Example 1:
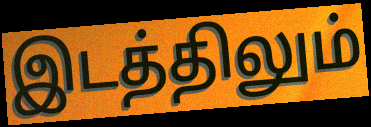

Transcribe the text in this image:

இடத்திலும்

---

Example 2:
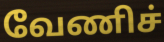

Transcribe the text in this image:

வேணிச்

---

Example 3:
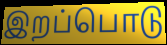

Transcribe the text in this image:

இறப்பொடு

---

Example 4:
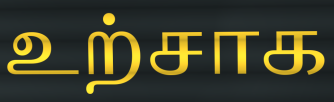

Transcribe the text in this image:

உற்சாக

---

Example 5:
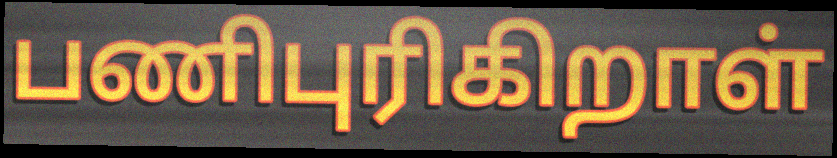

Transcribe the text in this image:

பணிபுரிகிறாள்